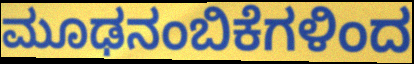
ಮೂಢನಂಬಿಕೆಗಳಿಂದ